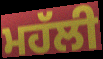
ਮਹੱਲੀ